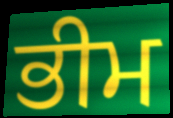
ਭੀਮ